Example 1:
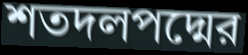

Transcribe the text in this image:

শতদলপদ্মের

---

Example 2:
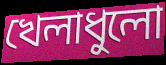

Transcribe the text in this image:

খেলাধুলো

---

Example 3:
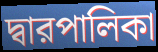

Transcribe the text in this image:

দ্বারপালিকা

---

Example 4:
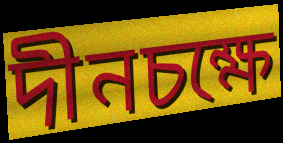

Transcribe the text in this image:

দীনচক্ষে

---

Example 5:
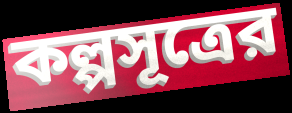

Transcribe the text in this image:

কল্পসূত্রের